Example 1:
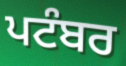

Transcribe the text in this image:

ਪਟੰਬਰ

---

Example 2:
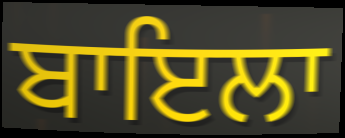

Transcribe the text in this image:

ਬਾਇਲਾ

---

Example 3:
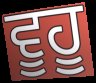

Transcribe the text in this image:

ਵੂਹੂ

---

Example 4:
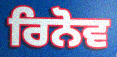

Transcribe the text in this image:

ਰਿਨੋਵ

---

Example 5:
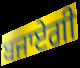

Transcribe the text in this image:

ਬਜਾਏਗੀ